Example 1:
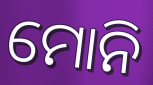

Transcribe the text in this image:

ମୋନି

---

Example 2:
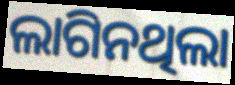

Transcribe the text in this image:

ଲାଗିନଥିଲା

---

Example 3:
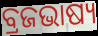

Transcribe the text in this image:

ବ୍ରଜଭାଷ୍ୟ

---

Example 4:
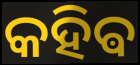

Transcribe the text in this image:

କହିଵ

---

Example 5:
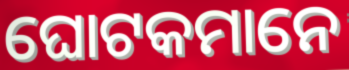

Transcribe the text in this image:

ଘୋଟକମାନେ